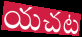
యచట